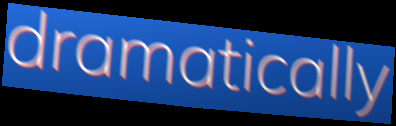
dramatically